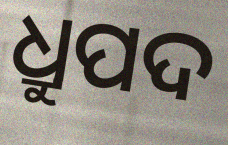
ଧ୍ରୁପଦ